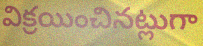
విక్రయించినట్లుగా